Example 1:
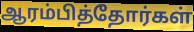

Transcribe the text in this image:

ஆரம்பித்தோர்கள்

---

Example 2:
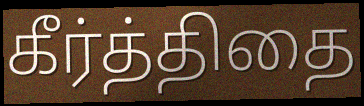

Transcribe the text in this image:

கீர்த்திதை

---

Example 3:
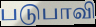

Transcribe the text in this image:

படுபாவி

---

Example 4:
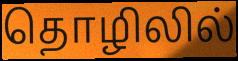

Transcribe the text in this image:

தொழிலில்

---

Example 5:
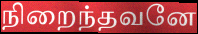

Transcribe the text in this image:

நிறைந்தவனே